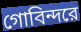
গোবিন্দরে